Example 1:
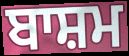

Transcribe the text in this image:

ਬਾਸ਼ਮ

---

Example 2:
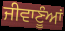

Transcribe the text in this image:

ਜੀਵਾਣੂੰਆਂ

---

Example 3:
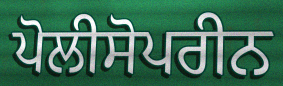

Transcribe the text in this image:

ਪੋਲੀਸੋਪਰੀਨ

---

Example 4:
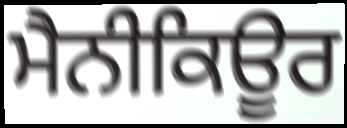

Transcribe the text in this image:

ਮੈਨੀਕਿਊਰ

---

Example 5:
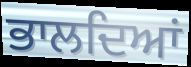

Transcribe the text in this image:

ਭਾਲਦਿਆਂ